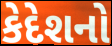
કેદેશનો